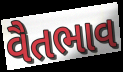
વૈતભાવ